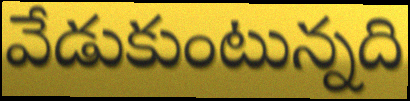
వేడుకుంటున్నది